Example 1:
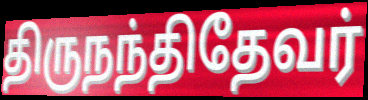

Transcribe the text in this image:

திருநந்திதேவர்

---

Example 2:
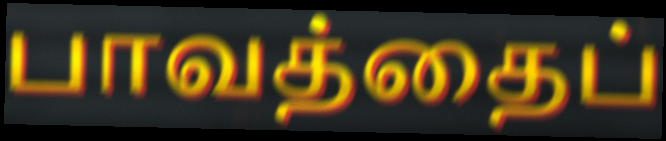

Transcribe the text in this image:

பாவத்தைப்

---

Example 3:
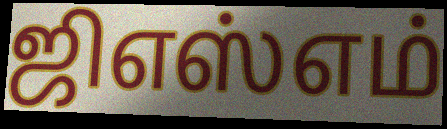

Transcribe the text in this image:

ஜிஎஸ்எம்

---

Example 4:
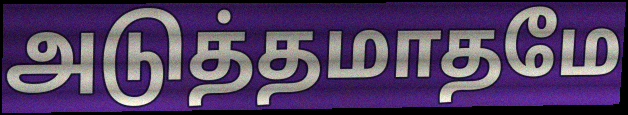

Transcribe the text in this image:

அடுத்தமாதமே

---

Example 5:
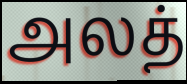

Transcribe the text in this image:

அலத்